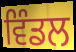
ਵਿੰਡਲ